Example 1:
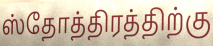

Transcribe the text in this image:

ஸ்தோத்திரத்திற்கு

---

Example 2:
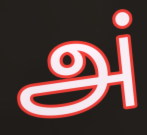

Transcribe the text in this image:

அ்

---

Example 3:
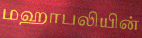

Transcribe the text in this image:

மஹாபலியின்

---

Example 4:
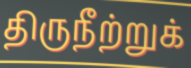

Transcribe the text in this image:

திருநீற்றுக்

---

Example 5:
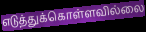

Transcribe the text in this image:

எடுத்துக்கொள்ளவில்லை